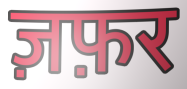
ज़फ़र